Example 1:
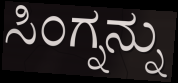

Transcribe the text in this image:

ಸಿಂಗ್ನನ್ನು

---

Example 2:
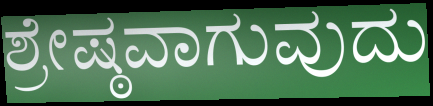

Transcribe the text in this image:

ಶ್ರೇಷ್ಠವಾಗುವುದು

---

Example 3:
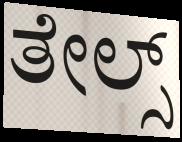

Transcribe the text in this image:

ತೇಲ್ಸ್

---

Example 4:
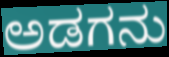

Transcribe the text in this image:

ಅಡಗನು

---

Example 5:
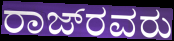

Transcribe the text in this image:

ರಾಜ್‌ರವರು